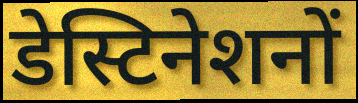
डेस्टिनेशनों